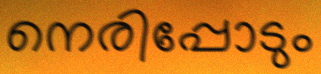
നെരിപ്പോടും